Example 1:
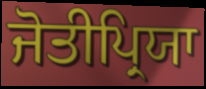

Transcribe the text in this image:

ਜੋਤੀਪ੍ਰਿਯਾ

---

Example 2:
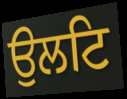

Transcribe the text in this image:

ਉਲਟਿ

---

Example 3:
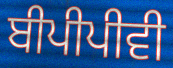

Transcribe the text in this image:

ਬੀਪੀਪੀਵੀ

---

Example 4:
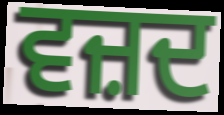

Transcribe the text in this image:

ਵਜ਼ਦ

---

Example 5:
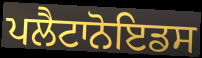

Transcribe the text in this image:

ਪਲੈਟਾਨੋਇਡਸ